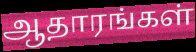
ஆதாரங்கள்